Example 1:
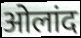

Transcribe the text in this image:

ओलांद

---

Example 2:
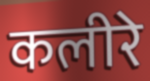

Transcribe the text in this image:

कलीरे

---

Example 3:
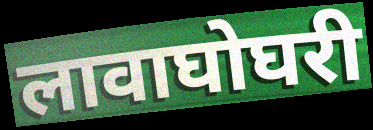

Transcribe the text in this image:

लावाघोघरी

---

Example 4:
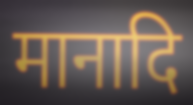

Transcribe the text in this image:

मानादि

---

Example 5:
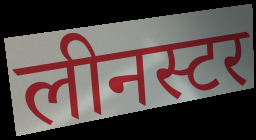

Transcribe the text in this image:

लीनस्टर